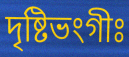
দৃষ্টিভংগীঃ